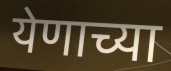
येणाच्या